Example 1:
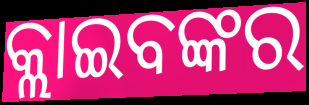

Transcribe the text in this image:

କ୍ଲାଇବଙ୍କର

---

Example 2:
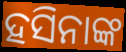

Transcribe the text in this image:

ହସିନାଙ୍କ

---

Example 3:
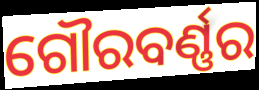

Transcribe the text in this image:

ଗୌରବର୍ଣ୍ଣର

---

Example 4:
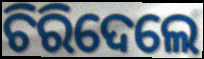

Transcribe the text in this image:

ଚିରିଦେଲେ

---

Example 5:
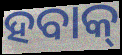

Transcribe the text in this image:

ହବାକ୍